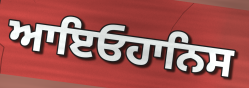
ਆਇਓਹਾਨਿਸ